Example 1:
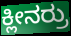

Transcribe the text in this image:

ಕ್ಲೀನರ್ರು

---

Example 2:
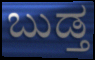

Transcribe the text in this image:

ಬುಡ್ತ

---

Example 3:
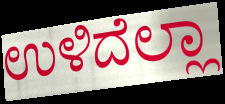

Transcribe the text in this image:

ಉಳಿದೆಲ್ಲಾ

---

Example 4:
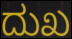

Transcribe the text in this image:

ದುಖ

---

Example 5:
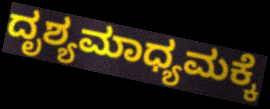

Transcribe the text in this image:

ದೃಶ್ಯಮಾಧ್ಯಮಕ್ಕೆ